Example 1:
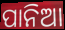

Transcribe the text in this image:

ପାନିଆ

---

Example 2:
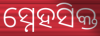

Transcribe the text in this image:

ସ୍ନେହସିକ୍ତ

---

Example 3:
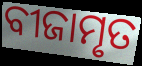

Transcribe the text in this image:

ବୀଜାମୃତ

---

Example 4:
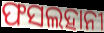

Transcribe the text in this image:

ଫସଲହାନୀ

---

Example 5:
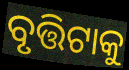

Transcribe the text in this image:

ବୃତ୍ତିଟାକୁ